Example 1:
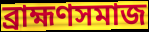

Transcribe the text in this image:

ব্রাহ্মণসমাজ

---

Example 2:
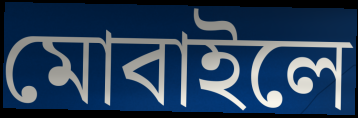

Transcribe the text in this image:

মোবাইলে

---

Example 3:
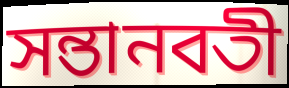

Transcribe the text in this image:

সন্তানবতী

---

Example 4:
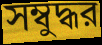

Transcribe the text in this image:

সম্বুদ্ধর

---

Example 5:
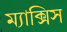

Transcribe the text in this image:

ম্যাক্সিস